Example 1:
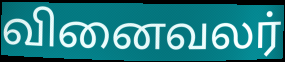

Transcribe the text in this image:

வினைவலர்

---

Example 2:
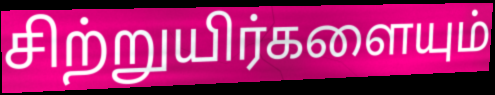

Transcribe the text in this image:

சிற்றுயிர்களையும்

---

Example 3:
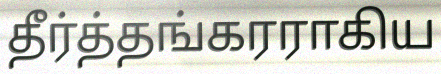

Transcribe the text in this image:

தீர்த்தங்கரராகிய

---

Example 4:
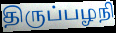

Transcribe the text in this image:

திருப்பழநி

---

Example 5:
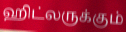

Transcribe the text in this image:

ஹிட்லருக்கும்